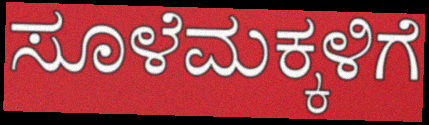
ಸೂಳೆಮಕ್ಕಳಿಗೆ